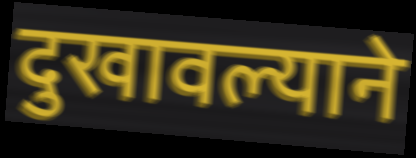
दुखावल्याने